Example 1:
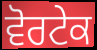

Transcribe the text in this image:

ਵੋਰਟੇਕ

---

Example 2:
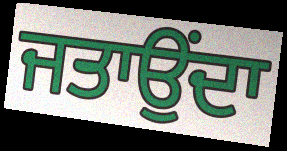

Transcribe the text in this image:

ਜਤਾਉਂਦਾ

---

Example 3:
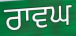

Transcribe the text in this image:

ਰਾਵਘ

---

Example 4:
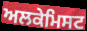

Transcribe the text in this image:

ਅਲਕੇਮਿਸਟ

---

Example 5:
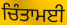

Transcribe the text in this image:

ਚਿੰਤਾਮਈ